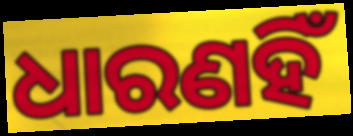
ଧାରଣହିଁ